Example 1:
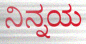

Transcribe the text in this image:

ನಿನ್ನಯ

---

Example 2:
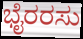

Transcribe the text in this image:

ಭೈರರಸು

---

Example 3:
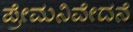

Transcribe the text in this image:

ಪ್ರೇಮನಿವೇದನೆ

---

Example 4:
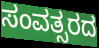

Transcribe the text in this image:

ಸಂವತ್ಸರದ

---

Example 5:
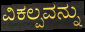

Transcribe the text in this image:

ವಿಕಲ್ಪವನ್ನು